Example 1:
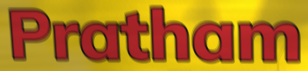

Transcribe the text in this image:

Pratham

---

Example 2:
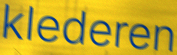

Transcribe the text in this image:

klederen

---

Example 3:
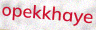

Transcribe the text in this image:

opekkhaye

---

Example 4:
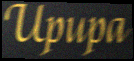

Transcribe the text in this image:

Upupa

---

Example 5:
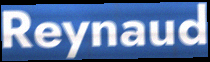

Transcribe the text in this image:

Reynaud